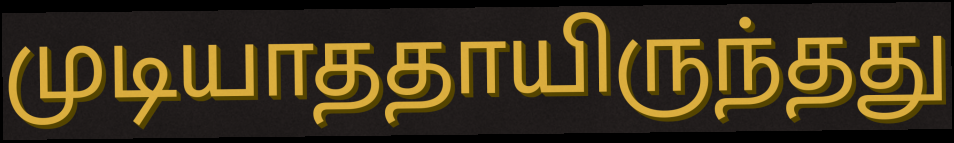
முடியாததாயிருந்தது